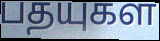
பதயுகள